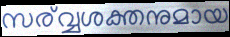
സര്വ്വശക്തനുമായ